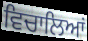
ਵਿਚਾਲਿਆਂ